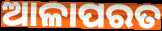
ଆଳାପରତ